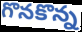
గొనకొన్న